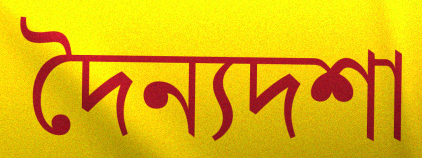
দৈন্যদশা